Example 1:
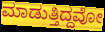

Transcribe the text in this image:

ಮಾಡುತ್ತಿದ್ದವೋ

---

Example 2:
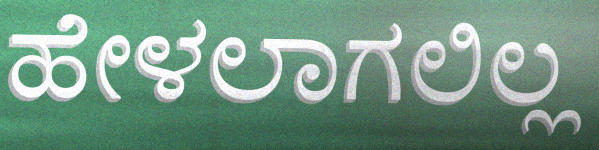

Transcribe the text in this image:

ಹೇಳಲಾಗಲಿಲ್ಲ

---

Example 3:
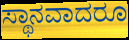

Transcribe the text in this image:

ಸ್ಥಾನವಾದರೂ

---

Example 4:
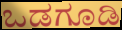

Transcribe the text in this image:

ಒಡಗೂಡಿ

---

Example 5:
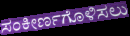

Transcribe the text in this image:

ಸಂಕೀರ್ಣಗೊಳಿಸಲು